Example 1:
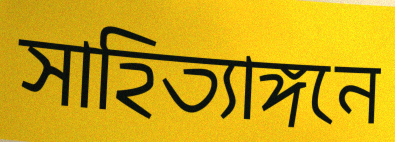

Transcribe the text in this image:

সাহিত্যাঙ্গনে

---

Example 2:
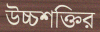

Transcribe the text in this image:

উচ্চশক্তির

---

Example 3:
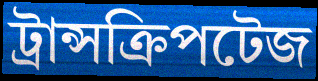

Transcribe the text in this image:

ট্রান্সক্রিপটেজ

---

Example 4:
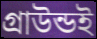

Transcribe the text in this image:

গ্রাউন্ডই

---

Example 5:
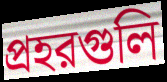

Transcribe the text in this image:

প্রহরগুলি